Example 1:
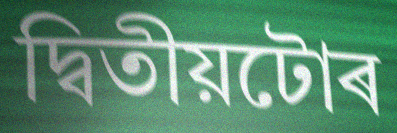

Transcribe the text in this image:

দ্বিতীয়টোৰ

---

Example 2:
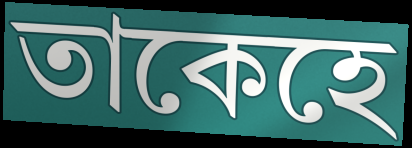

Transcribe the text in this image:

তাকেহে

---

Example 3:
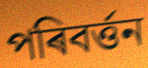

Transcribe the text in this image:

পৰিবৰ্ত্তন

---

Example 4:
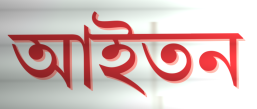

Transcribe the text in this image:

আইতন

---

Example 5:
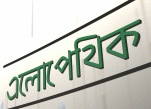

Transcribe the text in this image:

এলোপেথিক